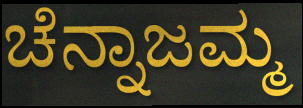
ಚೆನ್ನಾಜಮ್ಮ